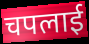
चपलाई